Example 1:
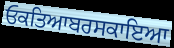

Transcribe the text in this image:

ਓਕਤਿਆਬਰਸਕਾਇਆ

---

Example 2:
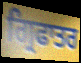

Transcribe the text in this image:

ਗ੍ਰਿਫਾਤਰ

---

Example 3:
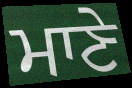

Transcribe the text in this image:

ਮਾਣੇ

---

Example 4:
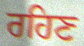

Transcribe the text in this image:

ਰਹਿਣ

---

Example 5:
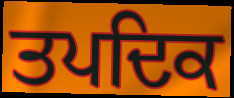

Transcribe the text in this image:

ਤਪਦਿਕ